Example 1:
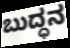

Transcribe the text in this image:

ಬುದ್ಧನ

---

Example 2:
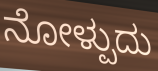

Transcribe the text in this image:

ನೋಳ್ಪುದು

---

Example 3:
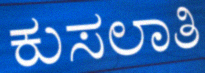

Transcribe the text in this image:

ಕುಸಲಾತಿ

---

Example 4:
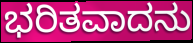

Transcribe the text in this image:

ಭರಿತವಾದನು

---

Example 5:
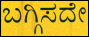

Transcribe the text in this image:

ಬಗ್ಗಿಸದೇ